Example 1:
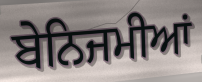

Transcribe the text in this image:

ਬੇਨਿਜਮੀਆਂ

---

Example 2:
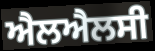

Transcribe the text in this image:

ਐਲਐਲਸੀ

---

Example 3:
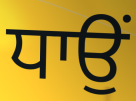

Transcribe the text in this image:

ਧਾਉਂ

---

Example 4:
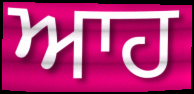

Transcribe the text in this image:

ਆਹ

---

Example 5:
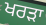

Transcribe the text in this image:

ਖਰੜਾ